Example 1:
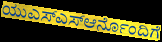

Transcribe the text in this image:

ಯುಎಸ್ಎಸ್ಆರ್ನೊಂದಿಗೆ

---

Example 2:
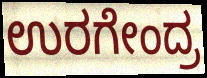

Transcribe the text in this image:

ಉರಗೇಂದ್ರ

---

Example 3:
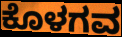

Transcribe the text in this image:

ಕೊಳಗವ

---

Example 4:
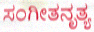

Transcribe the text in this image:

ಸಂಗೀತನೃತ್ಯ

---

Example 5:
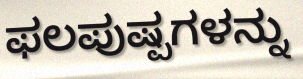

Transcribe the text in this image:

ಫಲಪುಷ್ಪಗಳನ್ನು